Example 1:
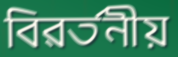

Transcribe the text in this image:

বিৱৰ্তনীয়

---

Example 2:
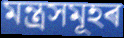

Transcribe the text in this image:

মন্ত্ৰসমূহৰ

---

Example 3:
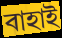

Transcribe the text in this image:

বাহাই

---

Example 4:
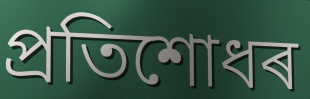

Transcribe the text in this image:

প্ৰতিশোধৰ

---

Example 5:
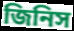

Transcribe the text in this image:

জিনিস